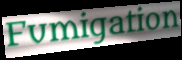
Fumigation